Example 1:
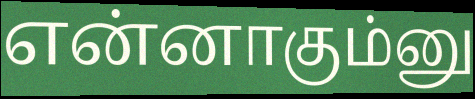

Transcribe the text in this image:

என்னாகும்னு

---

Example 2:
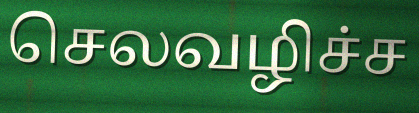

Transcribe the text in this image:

செலவழிச்ச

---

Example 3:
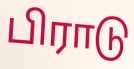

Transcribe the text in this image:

பிராடு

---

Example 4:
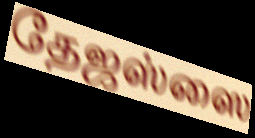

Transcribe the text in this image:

தேஜஸ்ஸை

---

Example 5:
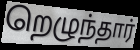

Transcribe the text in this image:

றெழுந்தார்